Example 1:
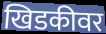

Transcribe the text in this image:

खिडकीवर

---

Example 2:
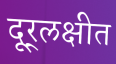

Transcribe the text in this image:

दूर्लक्षीत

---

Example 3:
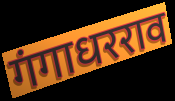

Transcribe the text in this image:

गंगाधरराव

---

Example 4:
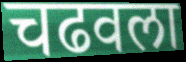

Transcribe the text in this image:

चढवला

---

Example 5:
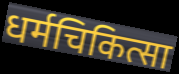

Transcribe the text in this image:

धर्मचिकित्सा